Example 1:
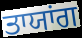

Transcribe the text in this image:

ਤਾਯਾਂਗ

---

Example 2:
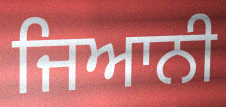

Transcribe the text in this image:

ਜਿਆਨੀ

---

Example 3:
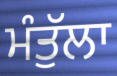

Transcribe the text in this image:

ਮੰਤੁੱਲਾ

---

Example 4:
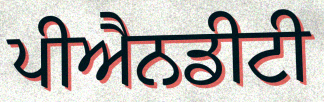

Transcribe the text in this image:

ਪੀਐਨਡੀਟੀ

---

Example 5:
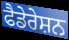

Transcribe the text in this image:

ਫੈਡੇਰੇਸ਼ਨ